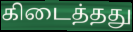
கிடைத்தது